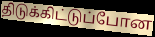
திடுக்கிட்டுப்போன